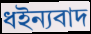
ধইন্যবাদ